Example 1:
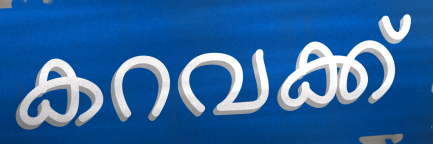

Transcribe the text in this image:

കറവക്ക്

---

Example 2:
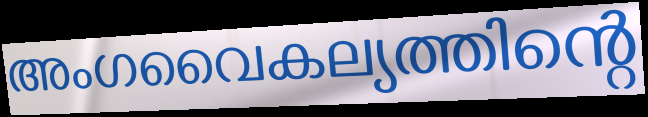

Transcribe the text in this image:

അംഗവൈകല്യത്തിന്റെ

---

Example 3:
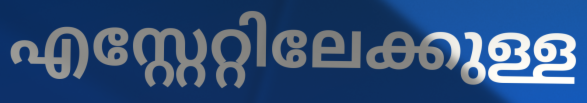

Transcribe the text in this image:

എസ്റ്റേറ്റിലേക്കുള്ള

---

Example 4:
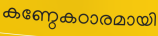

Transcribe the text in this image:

കണ്ഠേകഠാരമായി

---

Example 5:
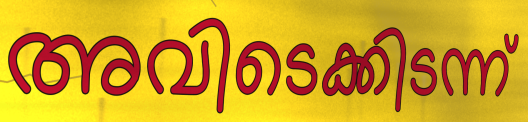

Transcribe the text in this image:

അവിടെക്കിടന്ന്